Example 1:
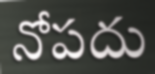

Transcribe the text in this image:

నోపదు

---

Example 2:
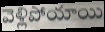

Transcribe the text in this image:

వెళ్లిపోయాయి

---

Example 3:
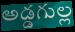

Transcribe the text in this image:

అడ్డగుల్ల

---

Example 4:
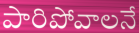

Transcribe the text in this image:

పారిపోవాలనే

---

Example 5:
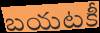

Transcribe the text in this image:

బయటకీ